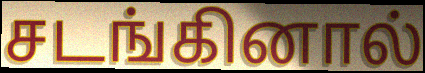
சடங்கினால்